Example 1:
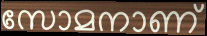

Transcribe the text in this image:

സോമനാണ്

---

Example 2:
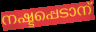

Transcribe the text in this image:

നഷ്ടപ്പെടാന്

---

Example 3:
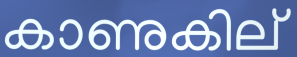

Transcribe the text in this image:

കാണുകില്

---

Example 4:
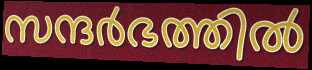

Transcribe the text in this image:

സന്ദർഭത്തിൽ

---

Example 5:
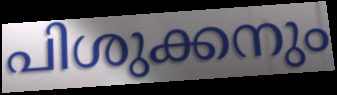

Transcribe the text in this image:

പിശുക്കനും